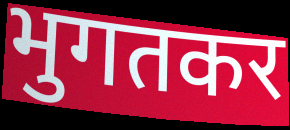
भुगतकर